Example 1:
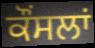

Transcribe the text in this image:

ਕੌਂਸਲਾਂ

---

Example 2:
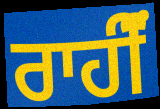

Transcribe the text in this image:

ਰਾਹੀਂੰ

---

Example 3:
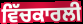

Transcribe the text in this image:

ਵਿੱਚਕਾਰਲੀ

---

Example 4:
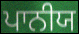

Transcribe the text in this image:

ਪਾਨੀਯ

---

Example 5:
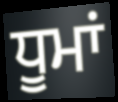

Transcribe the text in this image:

ਧੂਮਾਂ